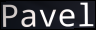
Pavel